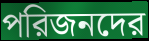
পরিজনদের